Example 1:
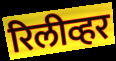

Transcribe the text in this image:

रिलीव्हर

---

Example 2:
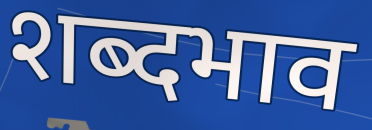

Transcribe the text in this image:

शब्दभाव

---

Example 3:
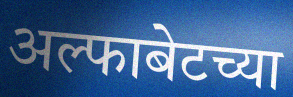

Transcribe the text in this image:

अल्फाबेटच्या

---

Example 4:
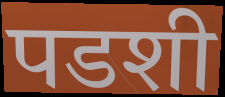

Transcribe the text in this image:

पडशी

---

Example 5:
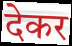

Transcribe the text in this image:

देकर